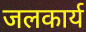
जलकार्य